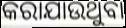
କରାଯାଉଥୁବା